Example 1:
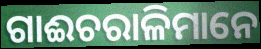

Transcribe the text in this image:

ଗାଈଚରାଳିମାନେ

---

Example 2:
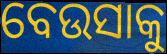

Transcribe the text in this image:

ବେଉସାକୁ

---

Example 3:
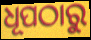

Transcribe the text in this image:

ଧୂପଠାରୁ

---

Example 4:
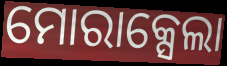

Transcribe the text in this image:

ମୋରାକ୍ସେଲା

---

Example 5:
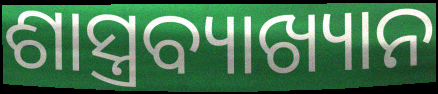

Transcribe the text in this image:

ଶାସ୍ତ୍ରବ୍ୟାଖ୍ୟାନ